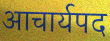
आचार्यपद